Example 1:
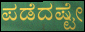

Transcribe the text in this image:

ಪಡೆದಷ್ಟೇ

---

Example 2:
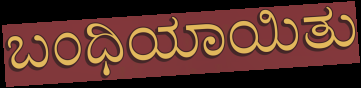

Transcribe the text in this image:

ಬಂಧಿಯಾಯಿತು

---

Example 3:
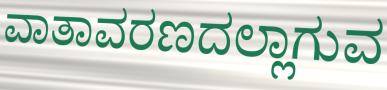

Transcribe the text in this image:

ವಾತಾವರಣದಲ್ಲಾಗುವ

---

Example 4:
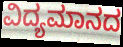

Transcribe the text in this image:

ವಿದ್ಯಮಾನದ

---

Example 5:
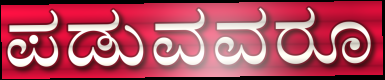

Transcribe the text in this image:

ಪಡುವವರೂ